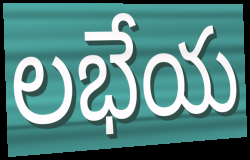
లభేయ